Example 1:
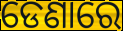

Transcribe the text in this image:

ଡେଣାରେ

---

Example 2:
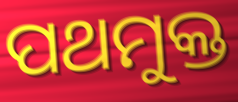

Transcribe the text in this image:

ପଥମୁକ୍ତ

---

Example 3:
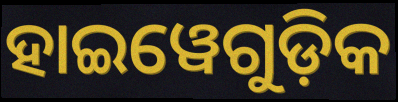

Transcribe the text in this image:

ହାଇୱେଗୁଡ଼ିକ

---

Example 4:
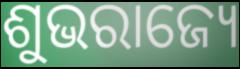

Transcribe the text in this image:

ଶୁଭରାଜ୍ୟେ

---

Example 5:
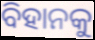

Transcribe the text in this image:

ବିହାନକୁ